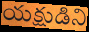
యక్షుడిని